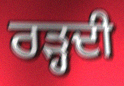
ਰੜ੍ਹਦੀ